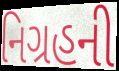
નિગ્રહની